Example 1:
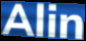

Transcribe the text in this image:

Alin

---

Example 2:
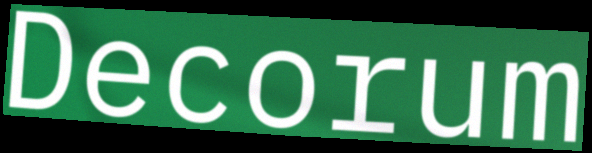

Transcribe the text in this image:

Decorum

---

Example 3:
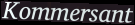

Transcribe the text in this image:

Kommersant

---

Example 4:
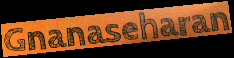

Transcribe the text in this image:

Gnanaseharan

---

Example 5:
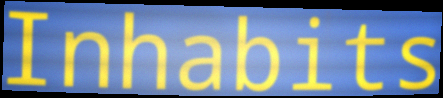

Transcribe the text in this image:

Inhabits